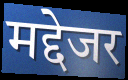
मद्देजर